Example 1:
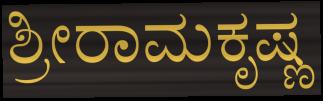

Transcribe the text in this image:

ಶ್ರೀರಾಮಕೃಷ್ಣ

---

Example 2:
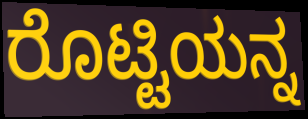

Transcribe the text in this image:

ರೊಟ್ಟಿಯನ್ನ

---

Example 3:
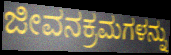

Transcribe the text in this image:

ಜೀವನಕ್ರಮಗಳನ್ನು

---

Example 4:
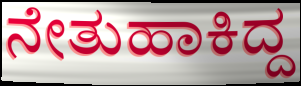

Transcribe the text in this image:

ನೇತುಹಾಕಿದ್ದ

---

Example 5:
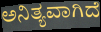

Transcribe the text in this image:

ಅನಿತ್ಯವಾಗಿದೆ